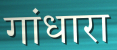
गांधारा